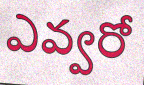
ఎవ్వరో